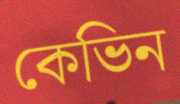
কেভিন